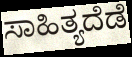
ಸಾಹಿತ್ಯದೆಡೆ